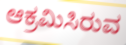
ಆಕ್ರಮಿಸಿರುವ